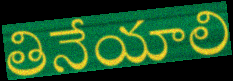
తినేయాలి